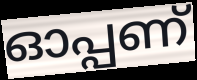
ഓപ്പണ്